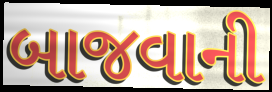
બાજવાની